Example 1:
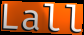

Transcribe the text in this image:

Lall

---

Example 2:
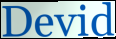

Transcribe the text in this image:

Devid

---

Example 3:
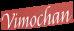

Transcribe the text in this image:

Vimochan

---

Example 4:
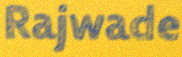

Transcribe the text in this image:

Rajwade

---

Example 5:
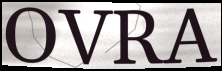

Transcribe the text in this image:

OVRA